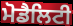
ਮੋਡੈਲਿਟੀ